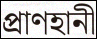
প্রাণহানী